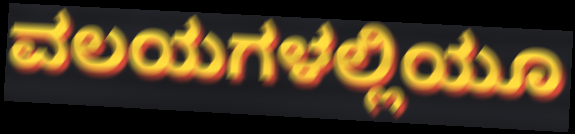
ವಲಯಗಳಲ್ಲಿಯೂ